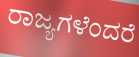
ರಾಜ್ಯಗಳೆಂದರೆ